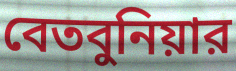
বেতবুনিয়ার